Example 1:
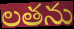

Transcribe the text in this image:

లతను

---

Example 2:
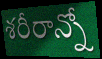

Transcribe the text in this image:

శరీరాన్నో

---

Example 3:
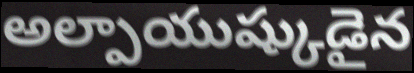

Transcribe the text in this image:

అల్పాయుష్కుడైన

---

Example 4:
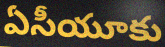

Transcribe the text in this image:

ఏసీయూకు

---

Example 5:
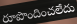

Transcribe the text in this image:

రూపొందించలేదు